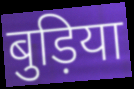
बुड़िया